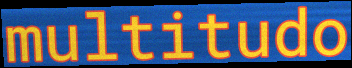
multitudo